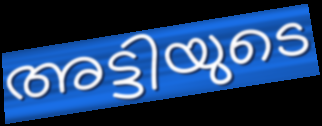
അട്ടിയുടെ